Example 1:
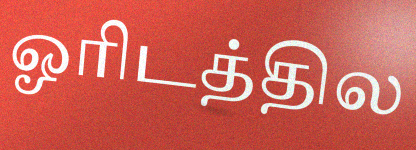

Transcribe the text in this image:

ஓரிடத்தில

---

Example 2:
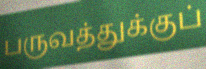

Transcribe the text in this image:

பருவத்துக்குப்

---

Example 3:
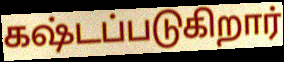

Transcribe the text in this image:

கஷ்டப்படுகிறார்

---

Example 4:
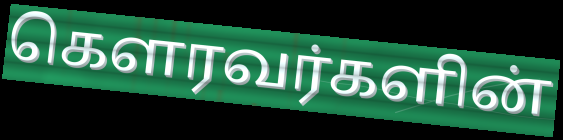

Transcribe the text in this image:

கௌரவர்களின்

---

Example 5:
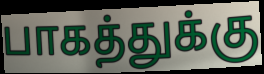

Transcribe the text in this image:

பாகத்துக்கு